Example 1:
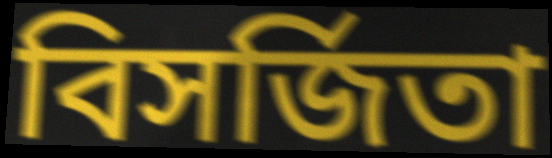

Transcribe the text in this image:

বিসর্জিতা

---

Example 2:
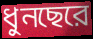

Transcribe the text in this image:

ধুনছেরে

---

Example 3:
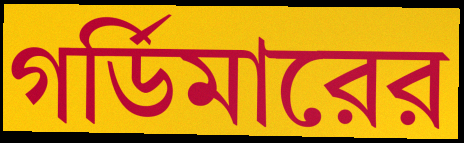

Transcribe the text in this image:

গর্ডিমারের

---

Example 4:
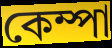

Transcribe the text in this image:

কেম্পা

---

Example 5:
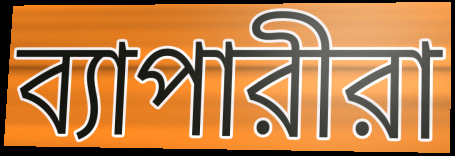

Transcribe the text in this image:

ব্যাপারীরা